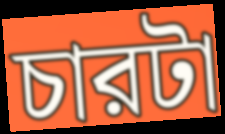
চারটা